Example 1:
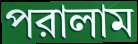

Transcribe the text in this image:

পরালাম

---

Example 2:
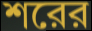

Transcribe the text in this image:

শরের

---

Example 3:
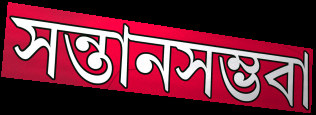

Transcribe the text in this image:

সন্তানসম্ভবা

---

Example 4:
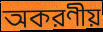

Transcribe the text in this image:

অকরণীয়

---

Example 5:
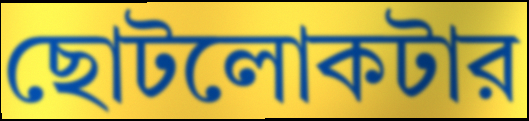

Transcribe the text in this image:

ছোটলোকটার